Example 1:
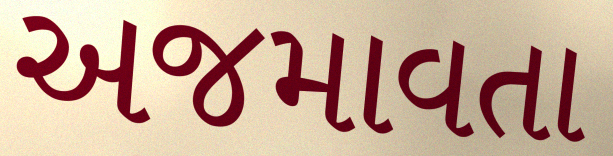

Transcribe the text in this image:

અજમાવતા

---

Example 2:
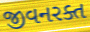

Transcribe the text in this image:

જીવનરક્ત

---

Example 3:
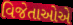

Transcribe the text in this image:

વિજેતાઓએ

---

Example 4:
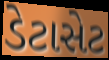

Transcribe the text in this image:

ડેટાસેટ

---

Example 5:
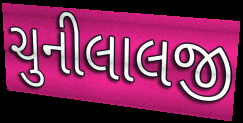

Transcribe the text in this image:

ચુનીલાલજી